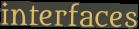
interfaces